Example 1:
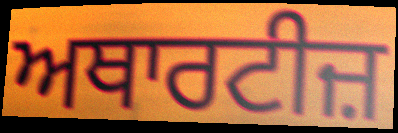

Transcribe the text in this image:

ਅਥਾਰਟੀਜ਼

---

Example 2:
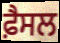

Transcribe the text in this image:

ਫ਼ੈਸਲ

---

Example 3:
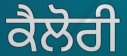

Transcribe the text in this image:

ਕੈਲੋਰੀ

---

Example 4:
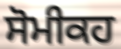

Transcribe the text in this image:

ਸੋਮੀਕਹ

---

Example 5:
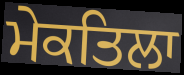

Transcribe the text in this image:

ਮੇਕਤਿਲਾ